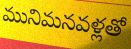
మునిమనవళ్లతో